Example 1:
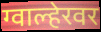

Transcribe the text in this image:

ग्वाल्हेरवर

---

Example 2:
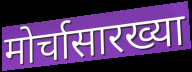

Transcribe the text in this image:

मोर्चासारख्या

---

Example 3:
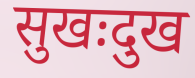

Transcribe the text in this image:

सुखःदुख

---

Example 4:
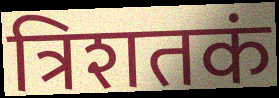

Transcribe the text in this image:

त्रिशतकं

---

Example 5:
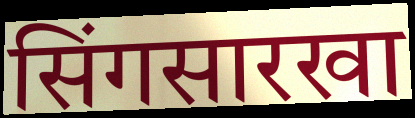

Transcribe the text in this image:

सिंगसारखा